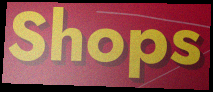
Shops